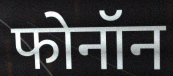
फोनॉन